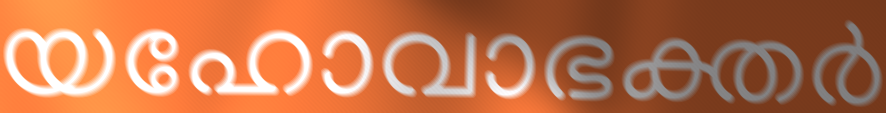
യഹോവാഭക്തർ